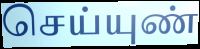
செய்யுண்